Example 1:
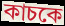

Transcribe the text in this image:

কাচকে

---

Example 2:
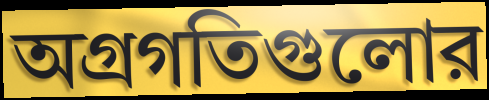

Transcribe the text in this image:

অগ্রগতিগুলোর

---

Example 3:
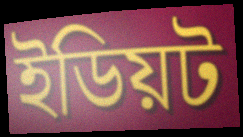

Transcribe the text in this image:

ইডিয়ট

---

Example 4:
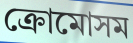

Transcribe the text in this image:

ক্রোমোসম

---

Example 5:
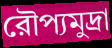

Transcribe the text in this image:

রৌপ্যমুদ্রা